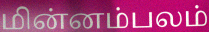
மின்னம்பலம்